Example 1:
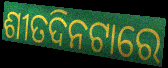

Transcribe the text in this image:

ଶୀତଦିନଟାରେ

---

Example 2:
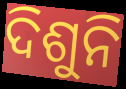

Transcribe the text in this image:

ଦିଶୁନି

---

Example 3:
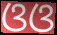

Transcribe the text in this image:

ଓଓ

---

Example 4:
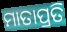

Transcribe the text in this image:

ମାତାପ୍ରତି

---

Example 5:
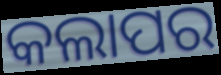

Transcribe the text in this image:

କଲାପର